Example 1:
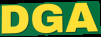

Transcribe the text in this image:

DGA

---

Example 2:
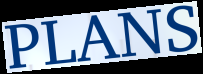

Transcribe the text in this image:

PLANS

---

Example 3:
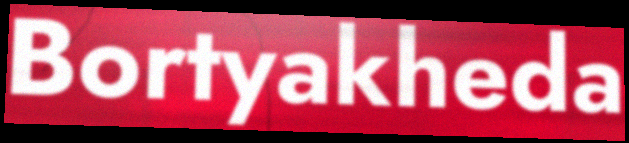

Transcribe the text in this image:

Bortyakheda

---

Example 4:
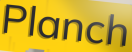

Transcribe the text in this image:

Planch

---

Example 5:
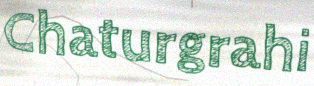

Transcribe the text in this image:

Chaturgrahi